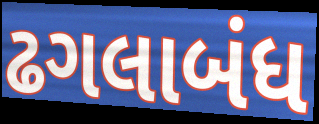
ઢગલાબંધ